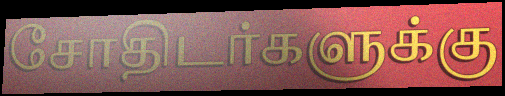
சோதிடர்களுக்கு